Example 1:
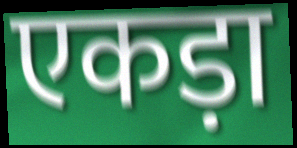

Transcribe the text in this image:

एकड़ा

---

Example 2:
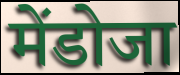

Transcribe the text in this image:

मेंडोजा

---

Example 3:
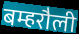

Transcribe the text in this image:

बम्हरौली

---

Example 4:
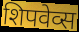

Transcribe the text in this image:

शिपवेव्स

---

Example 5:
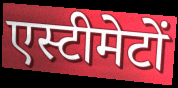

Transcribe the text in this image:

एस्टीमेटों